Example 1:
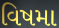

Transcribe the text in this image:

વિષમા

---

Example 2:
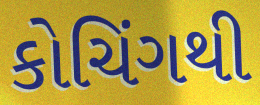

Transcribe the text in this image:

કોચિંગથી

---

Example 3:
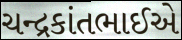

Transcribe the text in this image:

ચન્દ્રકાંતભાઈએ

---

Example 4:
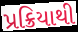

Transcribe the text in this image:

પ્રક્રિયાથી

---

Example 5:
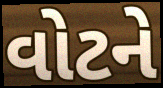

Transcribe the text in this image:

વોટને